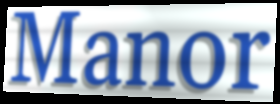
Manor